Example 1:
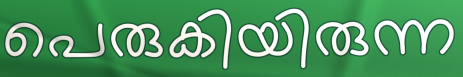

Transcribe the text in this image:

പെരുകിയിരുന്ന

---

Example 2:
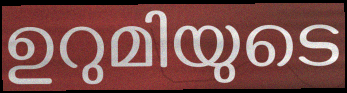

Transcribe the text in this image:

ഉറുമിയുടെ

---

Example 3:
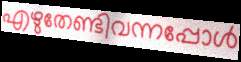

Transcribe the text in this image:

എഴുതേണ്ടിവന്നപ്പോൾ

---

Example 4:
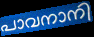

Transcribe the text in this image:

പാവനാനി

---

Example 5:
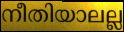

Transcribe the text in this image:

നീതിയാലല്ല